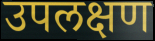
उपलक्षण